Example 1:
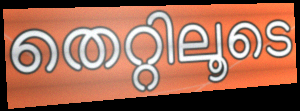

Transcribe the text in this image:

തെറ്റിലൂടെ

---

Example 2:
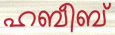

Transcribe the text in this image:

ഹബീബ്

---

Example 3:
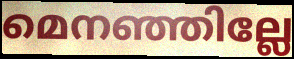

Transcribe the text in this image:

മെനഞ്ഞില്ലേ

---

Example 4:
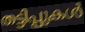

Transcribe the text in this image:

തട്ടിപ്പുകൾ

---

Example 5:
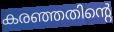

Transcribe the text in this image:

കരഞ്ഞതിന്റെ